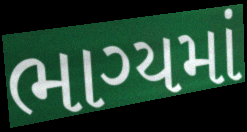
ભાગ્યમાં